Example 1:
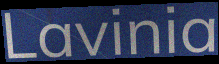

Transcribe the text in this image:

Lavinia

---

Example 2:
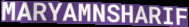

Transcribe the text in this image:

MARYAMNSHARIF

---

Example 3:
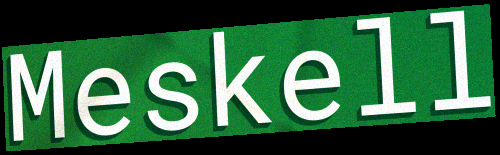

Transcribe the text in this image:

Meskell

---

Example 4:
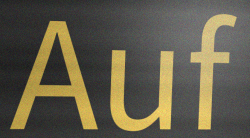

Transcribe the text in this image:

Auf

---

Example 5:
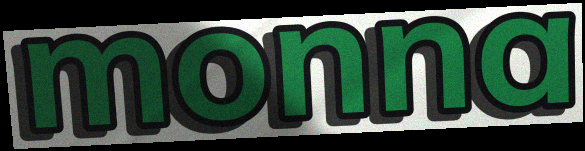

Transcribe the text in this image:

monna